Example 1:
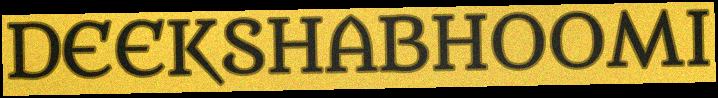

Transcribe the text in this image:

DEEKSHABHOOMI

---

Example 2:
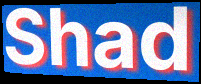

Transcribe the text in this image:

Shad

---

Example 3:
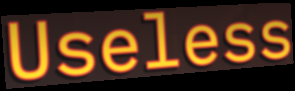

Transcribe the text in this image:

Useless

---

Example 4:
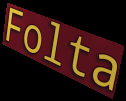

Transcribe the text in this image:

Folta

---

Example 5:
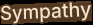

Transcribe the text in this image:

Sympathy